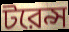
টরেন্স